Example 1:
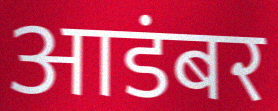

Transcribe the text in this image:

आडंबर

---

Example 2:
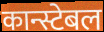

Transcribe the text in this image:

कान्स्टेबल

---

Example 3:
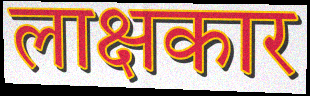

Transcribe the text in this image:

लाक्षकार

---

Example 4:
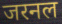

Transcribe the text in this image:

जरनल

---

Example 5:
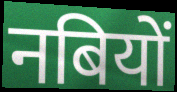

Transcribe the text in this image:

नबियों